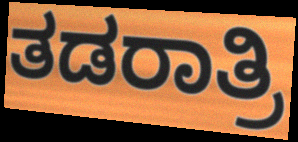
ತಡರಾತ್ರಿ